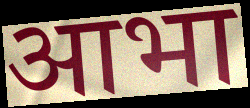
आभा